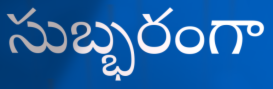
సుబ్భరంగా